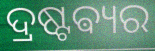
ଦ୍ରଷ୍ଟଵ୍ୟର